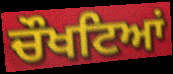
ਚੌਖਟਿਆਂ